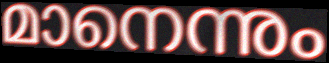
മാനെന്നും